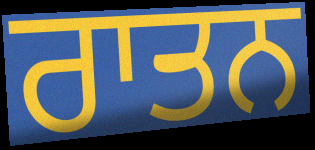
ਰਾਤਨ